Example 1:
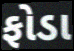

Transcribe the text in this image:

ફોડા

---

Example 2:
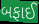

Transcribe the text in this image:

બફાઈ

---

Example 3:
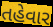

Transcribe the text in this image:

તહેવાર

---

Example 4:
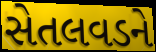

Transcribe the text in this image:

સેતલવડને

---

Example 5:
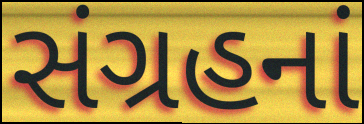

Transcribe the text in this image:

સંગ્રહનાં